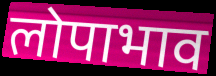
लोपाभाव